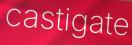
castigate